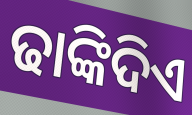
ଢାଙ୍କିଦିଏ